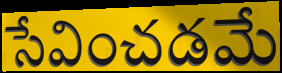
సేవించడమే